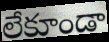
లేకూండా